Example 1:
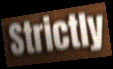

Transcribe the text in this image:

Strictly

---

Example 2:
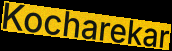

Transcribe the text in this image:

Kocharekar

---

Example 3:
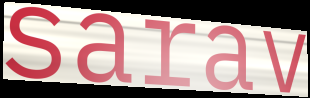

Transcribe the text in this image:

sarav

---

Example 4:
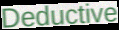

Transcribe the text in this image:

Deductive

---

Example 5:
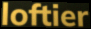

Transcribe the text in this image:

loftier